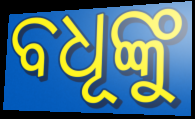
ବଧୂଙ୍କୁ